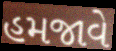
હમજાવે